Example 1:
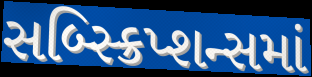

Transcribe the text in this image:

સબ્સ્ક્રિપ્શન્સમાં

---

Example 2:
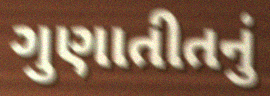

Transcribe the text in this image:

ગુણાતીતનું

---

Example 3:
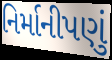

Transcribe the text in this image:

નિર્માનીપણું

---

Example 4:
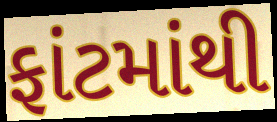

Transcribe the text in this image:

ફાંટમાંથી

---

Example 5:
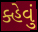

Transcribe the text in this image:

ક્હેવું